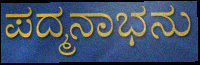
ಪದ್ಮನಾಭನು